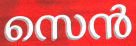
സെൻ